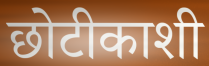
छोटीकाशी